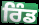
ਰਿੰਡ